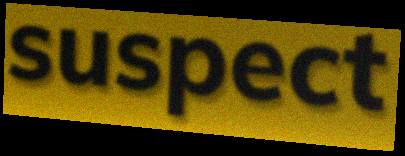
suspect